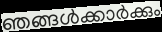
ഞങ്ങൾക്കാർക്കും